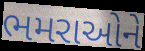
ભમરાઓને